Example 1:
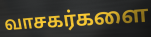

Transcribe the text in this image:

வாசகர்களை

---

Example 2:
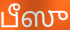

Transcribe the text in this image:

பீஸு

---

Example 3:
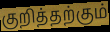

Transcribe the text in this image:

குறித்தற்கும்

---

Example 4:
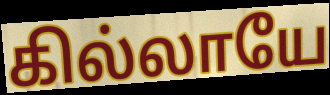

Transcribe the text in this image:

கில்லாயே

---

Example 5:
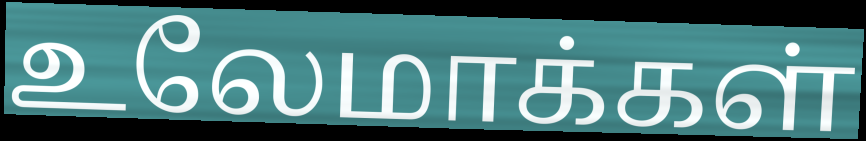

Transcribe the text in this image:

உலேமாக்கள்